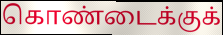
கொண்டைக்குக்